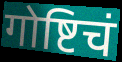
गोष्टिचं